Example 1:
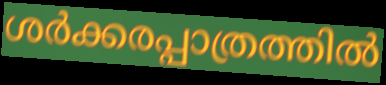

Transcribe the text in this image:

ശർക്കരപ്പാത്രത്തിൽ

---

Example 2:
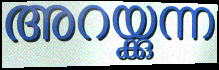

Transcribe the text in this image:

അറയ്ക്കുന്ന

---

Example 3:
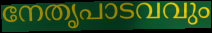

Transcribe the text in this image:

നേതൃപാടവവും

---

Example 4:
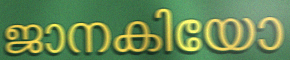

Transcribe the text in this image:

ജാനകിയോ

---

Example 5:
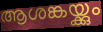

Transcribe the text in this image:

ആശങ്കയ്ക്കും